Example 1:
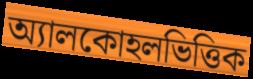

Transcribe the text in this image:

অ্যালকোহলভিত্তিক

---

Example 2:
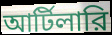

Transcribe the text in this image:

আর্টিলারি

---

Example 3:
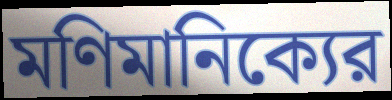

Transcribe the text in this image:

মণিমানিক্যের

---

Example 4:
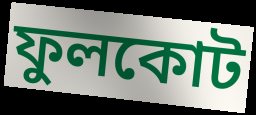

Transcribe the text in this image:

ফুলকোট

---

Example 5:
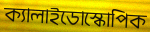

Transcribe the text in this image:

ক্যালাইডোস্কোপিক